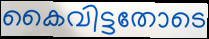
കൈവിട്ടതോടെ